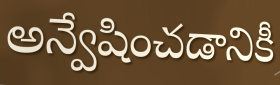
అన్వేషించడానికీ